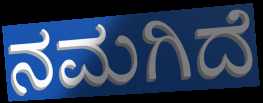
ನಮಗಿದೆ